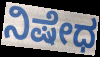
ನಿಷೇಧ